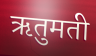
ऋतुमती